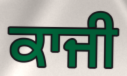
ਕਾਜੀ